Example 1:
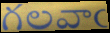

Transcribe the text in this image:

గలవాఁ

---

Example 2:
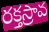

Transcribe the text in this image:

రక్తస్రావ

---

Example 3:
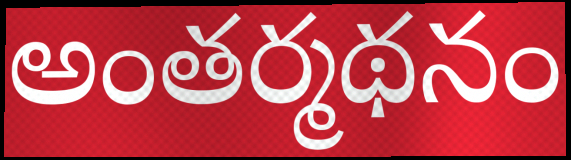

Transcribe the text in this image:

అంతర్మథనం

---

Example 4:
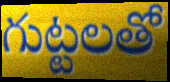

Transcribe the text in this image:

గుట్టలతో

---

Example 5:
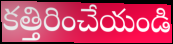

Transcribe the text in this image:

కత్తిరించేయండి